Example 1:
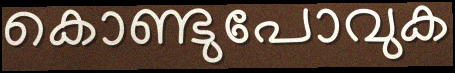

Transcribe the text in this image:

കൊണ്ടുപോവുക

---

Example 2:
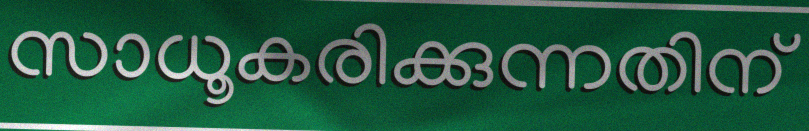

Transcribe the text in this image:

സാധൂകരിക്കുന്നതിന്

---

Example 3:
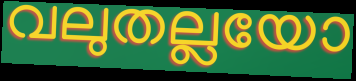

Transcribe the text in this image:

വലുതല്ലയോ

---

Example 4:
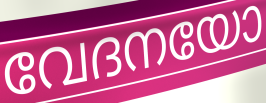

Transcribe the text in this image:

വേദനയോ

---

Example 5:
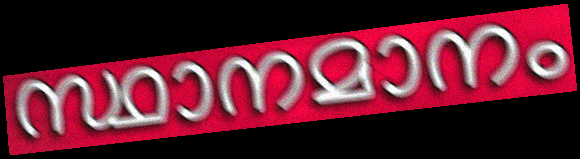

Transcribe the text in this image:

സ്ഥാനമാനം